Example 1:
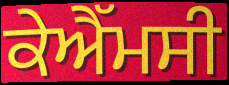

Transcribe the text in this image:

ਕੇਐੱਮਸੀ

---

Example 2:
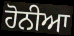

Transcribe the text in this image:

ਹੋਨੀਆ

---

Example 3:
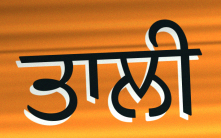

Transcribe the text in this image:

ਤਾਲੀ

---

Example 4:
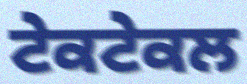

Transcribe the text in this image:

ਟੇਕਟੇਕਲ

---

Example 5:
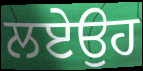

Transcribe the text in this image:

ਲਏਉਹ